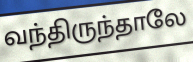
வந்திருந்தாலே